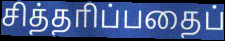
சித்தரிப்பதைப்